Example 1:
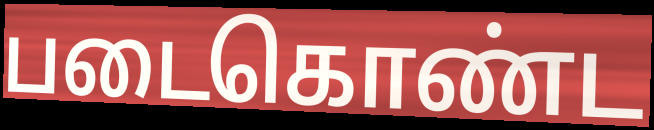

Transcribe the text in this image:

படைகொண்ட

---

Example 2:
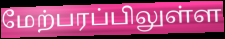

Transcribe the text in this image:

மேற்பரப்பிலுள்ள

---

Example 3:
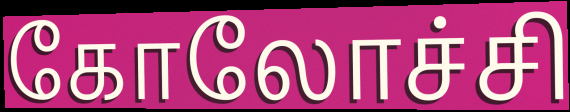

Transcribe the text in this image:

கோலோச்சி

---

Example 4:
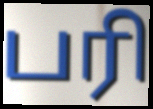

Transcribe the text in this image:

பரி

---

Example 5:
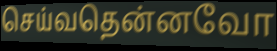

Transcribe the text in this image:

செய்வதென்னவோ